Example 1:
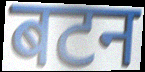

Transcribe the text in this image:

बटन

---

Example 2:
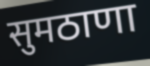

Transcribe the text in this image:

सुमठाणा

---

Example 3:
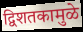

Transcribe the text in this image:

द्विशतकामुळे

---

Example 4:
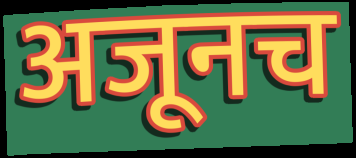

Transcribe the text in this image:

अजूनच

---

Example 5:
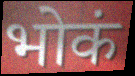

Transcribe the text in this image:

भोकं